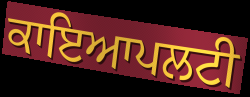
ਕਾਇਆਪਲਟੀ